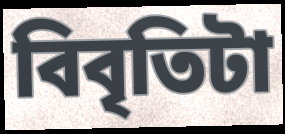
বিবৃতিটা